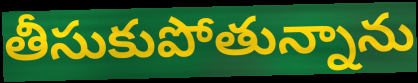
తీసుకుపోతున్నాను